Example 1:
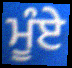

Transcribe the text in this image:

ਮੂੰਏ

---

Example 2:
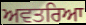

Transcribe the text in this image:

ਅਵਤਰਿਆ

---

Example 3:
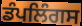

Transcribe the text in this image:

ਡੰਪਲਿੰਗਸ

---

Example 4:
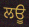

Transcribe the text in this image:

ਲਊ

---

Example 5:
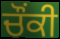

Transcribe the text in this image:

ਚੌਂਕੀ